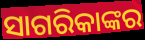
ସାଗରିକାଙ୍କର